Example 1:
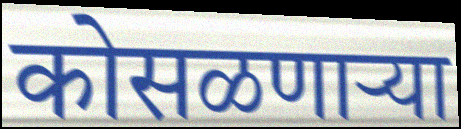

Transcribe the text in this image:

कोसळणार्‍या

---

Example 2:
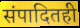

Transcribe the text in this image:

संपादितही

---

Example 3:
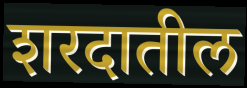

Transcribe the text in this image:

शरदातील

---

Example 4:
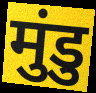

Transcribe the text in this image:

मुंडु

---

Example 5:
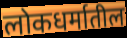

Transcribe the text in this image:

लोकधर्मातील